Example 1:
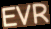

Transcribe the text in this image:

EVR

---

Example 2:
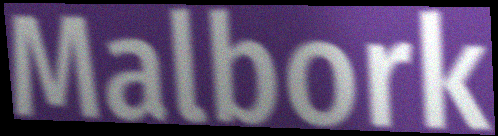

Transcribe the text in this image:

Malbork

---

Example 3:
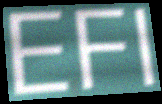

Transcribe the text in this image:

EFI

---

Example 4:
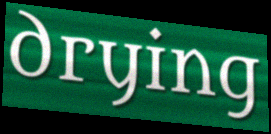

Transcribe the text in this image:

drying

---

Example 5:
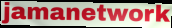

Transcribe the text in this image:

jamanetwork